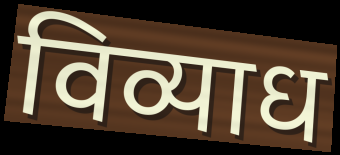
विव्याध